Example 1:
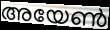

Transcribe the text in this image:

അയേൺ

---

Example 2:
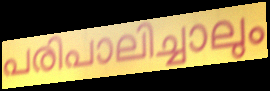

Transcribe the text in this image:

പരിപാലിച്ചാലും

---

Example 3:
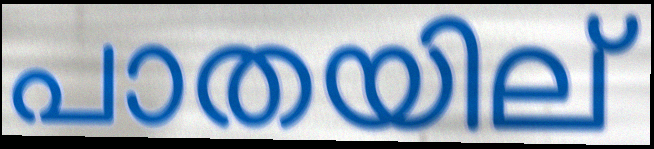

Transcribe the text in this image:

പാതയില്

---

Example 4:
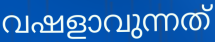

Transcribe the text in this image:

വഷളാവുന്നത്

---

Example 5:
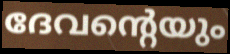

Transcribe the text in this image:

ദേവന്റെയും